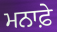
ਮਨਾਫ਼ੇ